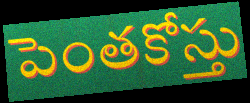
పెంతకోస్తు